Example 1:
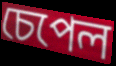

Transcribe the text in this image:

চেপেল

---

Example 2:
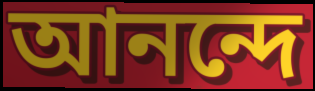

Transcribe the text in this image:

আনন্দে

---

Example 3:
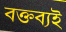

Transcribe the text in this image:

বক্তব্যই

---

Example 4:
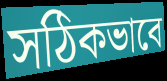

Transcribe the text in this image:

সঠিকভাবে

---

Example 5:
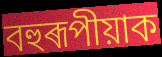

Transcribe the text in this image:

বহুৰূপীয়াক